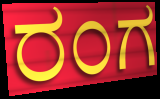
ರಂಗ